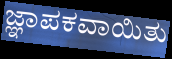
ಜ್ಞಾಪಕವಾಯಿತು